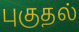
புகுதல்